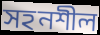
সহনশীল